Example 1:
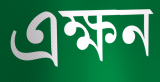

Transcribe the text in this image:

এক্ষন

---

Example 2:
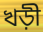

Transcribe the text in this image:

খড়ী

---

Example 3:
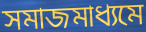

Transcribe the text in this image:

সমাজমাধ্যমে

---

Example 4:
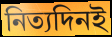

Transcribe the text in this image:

নিত্যদিনই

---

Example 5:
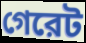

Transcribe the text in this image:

গেরেট